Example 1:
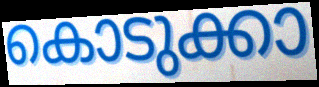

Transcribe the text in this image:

കൊടുക്കാ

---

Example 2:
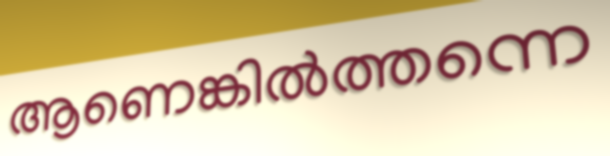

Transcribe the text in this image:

ആണെങ്കിൽത്തന്നെ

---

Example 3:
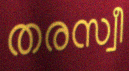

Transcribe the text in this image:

തരസ്വീ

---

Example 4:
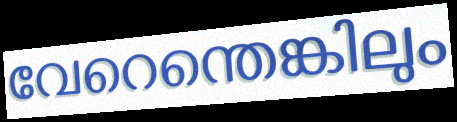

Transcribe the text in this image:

വേറെന്തെങ്കിലും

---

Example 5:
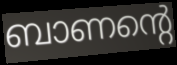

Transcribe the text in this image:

ബാണന്റെ